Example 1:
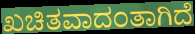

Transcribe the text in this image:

ಖಚಿತವಾದಂತಾಗಿದೆ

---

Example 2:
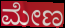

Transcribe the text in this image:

ಮೇಣ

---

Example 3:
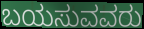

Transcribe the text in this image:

ಬಯಸುವವರು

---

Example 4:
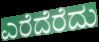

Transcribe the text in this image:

ಎರೆದೆರೆದು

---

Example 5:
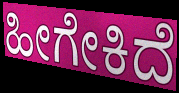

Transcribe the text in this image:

ಹೀಗೇಕಿದೆ